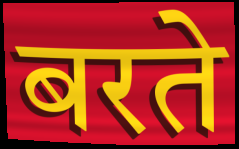
बरते